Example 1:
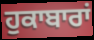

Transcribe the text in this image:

ਹੁਕਾਬਾਰਾਂ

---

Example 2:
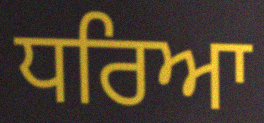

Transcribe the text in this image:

ਧਰਿਆ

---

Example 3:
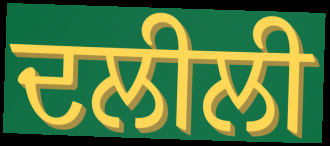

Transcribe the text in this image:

ਦਲੀਲੀ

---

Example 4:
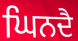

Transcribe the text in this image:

ਘਿਨਦੈ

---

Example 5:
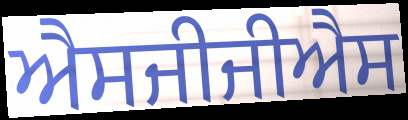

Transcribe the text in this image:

ਐਸਜੀਜੀਐਸ